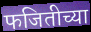
फजितीच्या